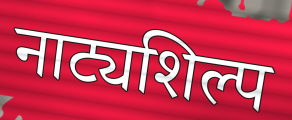
नाट्यशिल्प